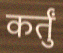
कर्तुं